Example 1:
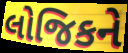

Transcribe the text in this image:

લોજિકને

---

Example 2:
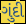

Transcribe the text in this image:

ગુંદી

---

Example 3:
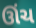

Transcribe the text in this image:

ઊંચ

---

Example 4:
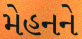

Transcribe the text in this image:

મેહનને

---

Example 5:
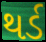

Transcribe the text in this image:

થર્ડ